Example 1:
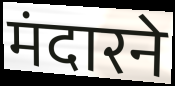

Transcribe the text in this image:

मंदारने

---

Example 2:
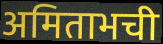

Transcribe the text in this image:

अमिताभची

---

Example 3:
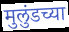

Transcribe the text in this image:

मुलुंडच्या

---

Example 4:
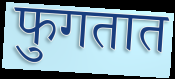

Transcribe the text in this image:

फुगतात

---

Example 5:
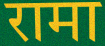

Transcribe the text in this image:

रामा